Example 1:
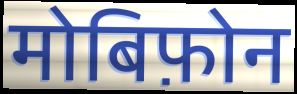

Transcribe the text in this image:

मोबिफ़ोन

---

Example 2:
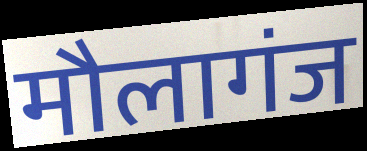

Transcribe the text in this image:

मौलागंज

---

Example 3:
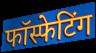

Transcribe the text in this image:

फॉस्फेटिंग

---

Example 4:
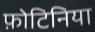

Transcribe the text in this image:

फ़ोटिनिया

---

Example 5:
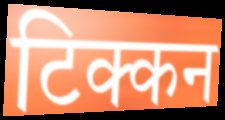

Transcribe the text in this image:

टिक्कन